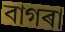
বাগৰা